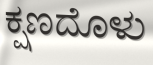
ಕ್ಷಣದೊಳು